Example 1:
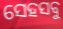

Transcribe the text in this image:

ସେହସବୁ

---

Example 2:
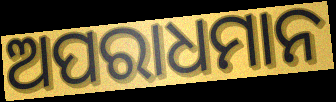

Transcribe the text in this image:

ଅପରାଧମାନ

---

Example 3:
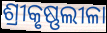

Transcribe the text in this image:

ଶ୍ରୀକୃଷ୍ଣଲୀଳା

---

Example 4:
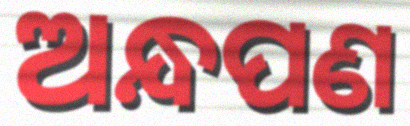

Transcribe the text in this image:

ଅନ୍ଧପଣ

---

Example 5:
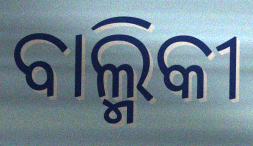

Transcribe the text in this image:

ବାଲ୍ମିକୀ